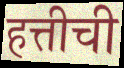
हत्तीची